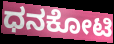
ಧನಕೋಟಿ